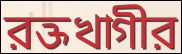
রক্তখাগীর